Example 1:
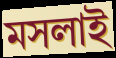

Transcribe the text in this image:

মসলাই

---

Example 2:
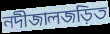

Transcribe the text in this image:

নদীজালজড়িত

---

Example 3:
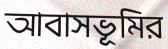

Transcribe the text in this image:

আবাসভূমির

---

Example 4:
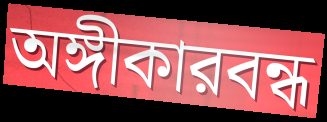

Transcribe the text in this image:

অঙ্গীকারবন্ধ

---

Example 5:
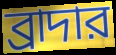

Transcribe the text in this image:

ব্রাদার